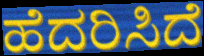
ಹೆದರಿಸಿದೆ